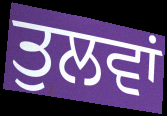
ਤੁਲਵਾਂ